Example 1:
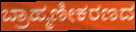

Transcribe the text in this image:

ಬ್ರಾಹ್ಮಣೀಕರಣದ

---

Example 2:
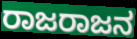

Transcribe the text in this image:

ರಾಜರಾಜನ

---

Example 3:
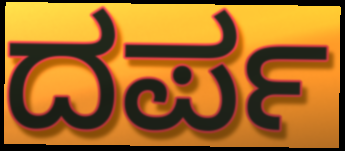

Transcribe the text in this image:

ದರ್ಪ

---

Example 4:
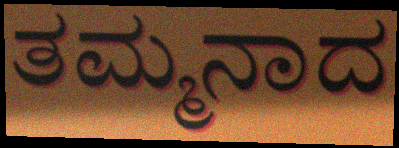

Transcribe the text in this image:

ತಮ್ಮನಾದ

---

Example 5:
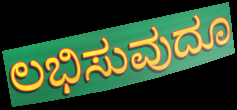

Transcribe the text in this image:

ಲಭಿಸುವುದೂ